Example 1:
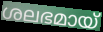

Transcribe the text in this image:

ശലഭമായ്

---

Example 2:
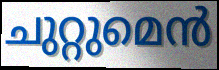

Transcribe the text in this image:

ചുറ്റുമെൻ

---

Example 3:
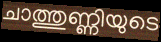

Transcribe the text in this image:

ചാത്തുണ്ണിയുടെ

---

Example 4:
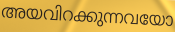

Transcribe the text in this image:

അയവിറക്കുന്നവയോ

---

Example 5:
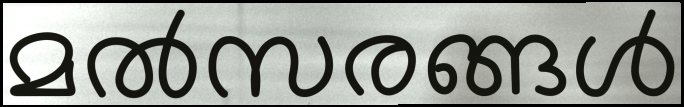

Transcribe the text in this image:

മൽസരങ്ങൾ